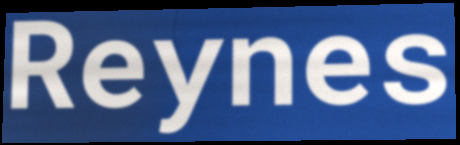
Reynes